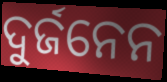
ଦୁର୍ଜନେନ